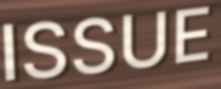
ISSUE